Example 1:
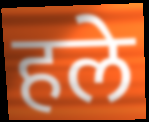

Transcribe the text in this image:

हले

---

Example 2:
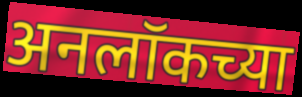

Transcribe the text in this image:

अनलॉकच्या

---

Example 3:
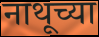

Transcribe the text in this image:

नाथूच्या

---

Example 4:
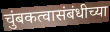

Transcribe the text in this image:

चुंबकत्वासंबंधीच्या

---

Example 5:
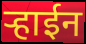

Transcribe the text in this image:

ऱ्हाईन